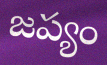
జప్యం